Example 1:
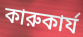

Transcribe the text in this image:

কারুকার্য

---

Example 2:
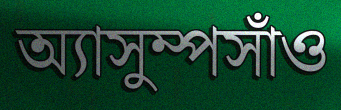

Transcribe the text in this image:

অ্যাসুম্পসাঁও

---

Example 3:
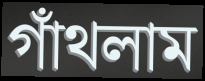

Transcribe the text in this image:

গাঁথলাম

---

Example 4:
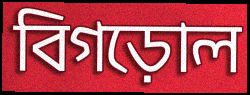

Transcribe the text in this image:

বিগড়োল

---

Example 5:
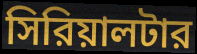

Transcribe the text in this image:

সিরিয়ালটার